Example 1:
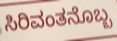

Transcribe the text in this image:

ಸಿರಿವಂತನೊಬ್ಬ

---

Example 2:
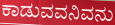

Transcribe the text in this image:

ಕಾಡುವವನಿವನು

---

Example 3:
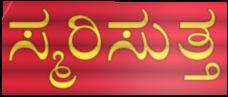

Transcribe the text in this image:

ಸ್ಮರಿಸುತ್ತ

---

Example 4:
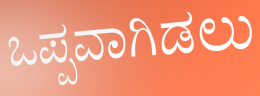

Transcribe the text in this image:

ಒಪ್ಪವಾಗಿಡಲು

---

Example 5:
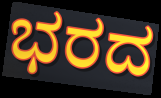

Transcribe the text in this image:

ಭರದ